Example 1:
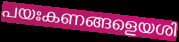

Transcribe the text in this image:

പയഃകണങ്ങളെയശി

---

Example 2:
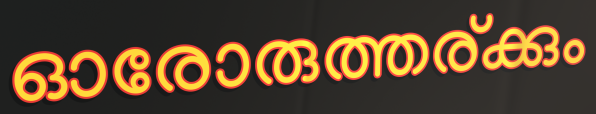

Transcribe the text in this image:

ഓരോരുത്തര്ക്കും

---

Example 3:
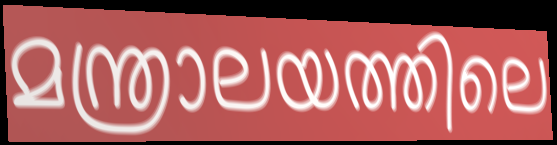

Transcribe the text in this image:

മന്ത്രാലയത്തിലെ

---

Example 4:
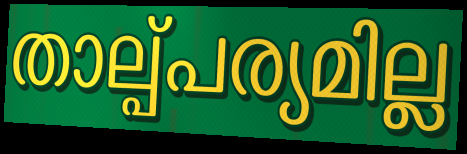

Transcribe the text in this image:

താല്പ്പര്യമില്ല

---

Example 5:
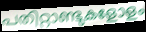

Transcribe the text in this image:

പതിറ്റാണ്ടുകളോളം